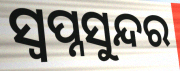
ସ୍ୱପ୍ନସୁନ୍ଦର